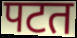
पटत